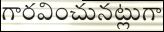
గారవించునట్లుగా